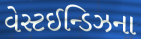
વેસ્ટઈન્ડિઝના